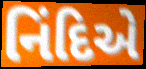
નિંદિએ